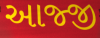
આજ્જી